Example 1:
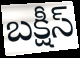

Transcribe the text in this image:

బక్షీస్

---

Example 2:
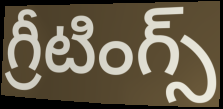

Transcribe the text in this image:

గ్రీటింగ్స్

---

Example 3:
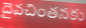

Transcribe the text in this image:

దైవచింతనకు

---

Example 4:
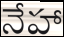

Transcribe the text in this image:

నేహా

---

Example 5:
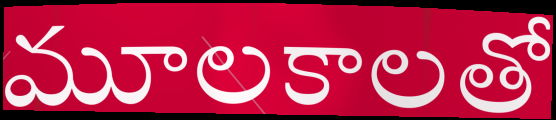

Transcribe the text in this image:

మూలకాలతో